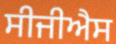
ਸੀਜੀਐਸ